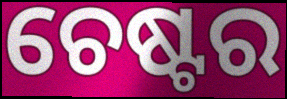
ଚେଷ୍ଟର